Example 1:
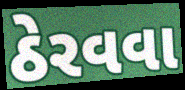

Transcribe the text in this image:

ઠેરવવા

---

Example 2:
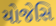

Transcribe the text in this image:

યોજેસિ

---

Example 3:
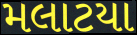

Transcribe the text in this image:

મલાટયા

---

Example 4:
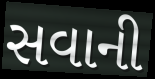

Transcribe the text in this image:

સવાની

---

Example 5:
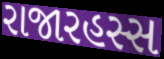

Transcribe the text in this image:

રાજારહસ્સ